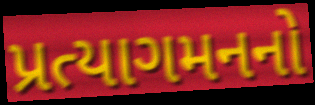
પ્રત્યાગમનનો